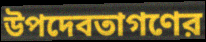
উপদেবতাগণের